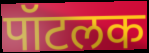
पॉटलक